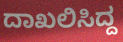
ದಾಖಲಿಸಿದ್ದ